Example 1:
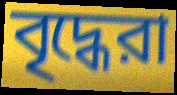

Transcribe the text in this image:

বৃদ্ধেরা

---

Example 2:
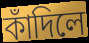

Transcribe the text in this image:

কাঁদিলে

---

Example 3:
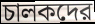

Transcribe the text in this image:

চালকদের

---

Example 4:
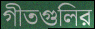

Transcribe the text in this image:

গীতগুলির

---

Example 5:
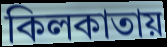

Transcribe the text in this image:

কিলকাতায়